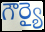
గౌర్యై